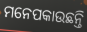
ମନେପକାଉଛନ୍ତି